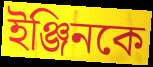
ইঞ্জিনকে